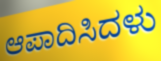
ಆಪಾದಿಸಿದಳು